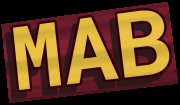
MAB